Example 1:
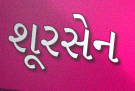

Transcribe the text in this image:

શૂરસેન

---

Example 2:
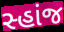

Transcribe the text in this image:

સ્હાંજ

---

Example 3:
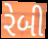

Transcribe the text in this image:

રેબી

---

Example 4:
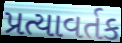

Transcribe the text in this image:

પ્રત્યાવર્તક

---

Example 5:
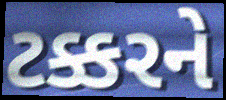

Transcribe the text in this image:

ટક્કરને